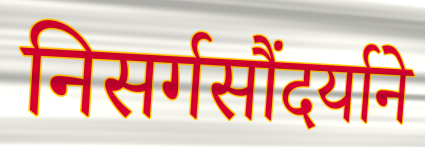
निसर्गसौंदर्याने